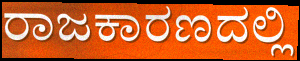
ರಾಜಕಾರಣದಲ್ಲಿ